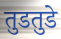
तुडतुडे